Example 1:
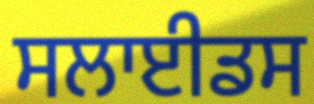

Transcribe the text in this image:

ਸਲਾਈਡਸ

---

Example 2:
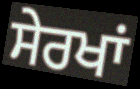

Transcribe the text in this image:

ਸੇਰਖਾਂ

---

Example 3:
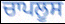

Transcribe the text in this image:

ਚਾਪਲੂਸ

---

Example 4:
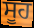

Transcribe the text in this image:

ਸੂਹ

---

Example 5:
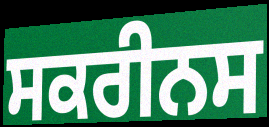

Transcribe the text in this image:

ਸਕਰੀਨਸ